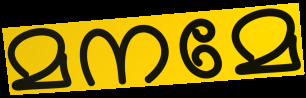
മനമേ